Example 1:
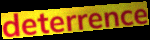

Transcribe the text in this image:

deterrence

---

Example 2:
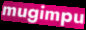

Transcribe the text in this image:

mugimpu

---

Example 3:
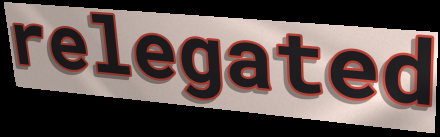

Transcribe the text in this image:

relegated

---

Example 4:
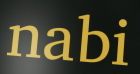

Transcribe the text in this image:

nabi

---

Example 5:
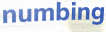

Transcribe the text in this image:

numbing